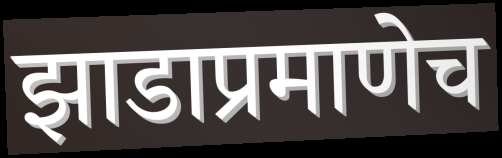
झाडाप्रमाणेच